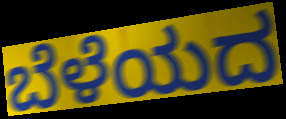
ಬೆಳೆಯದ